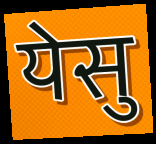
येसु